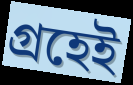
গ্রহেই